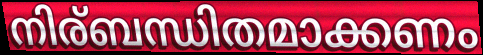
നിര്ബന്ധിതമാക്കണം